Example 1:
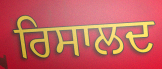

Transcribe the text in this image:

ਰਿਸਾਲਦ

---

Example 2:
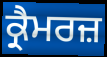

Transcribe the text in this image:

ਕ੍ਰੈਮਰਜ਼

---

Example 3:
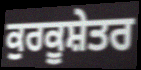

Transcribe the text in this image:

ਕੁਰਕੂਸ਼ੇਤਰ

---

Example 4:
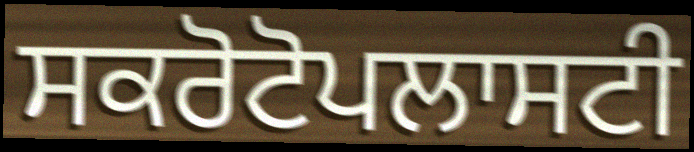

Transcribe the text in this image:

ਸਕਰੋਟੋਪਲਾਸਟੀ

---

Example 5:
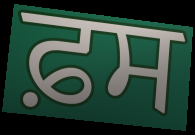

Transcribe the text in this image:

ਫ਼ਸ